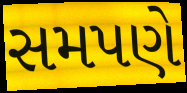
સમપણે